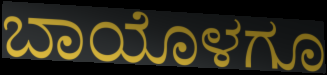
ಬಾಯೊಳಗೂ